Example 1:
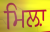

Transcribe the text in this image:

ਮਿਲ਼ਾ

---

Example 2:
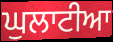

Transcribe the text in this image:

ਘੁਲਾਟੀਆ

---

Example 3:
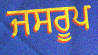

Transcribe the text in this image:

ਜਸਰੂਪ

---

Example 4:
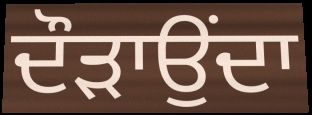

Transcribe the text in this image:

ਦੌੜਾਉਂਦਾ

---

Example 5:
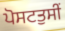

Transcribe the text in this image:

ਪੋਸਟਤੁਸੀਂ